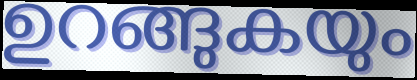
ഉറങ്ങുകയും